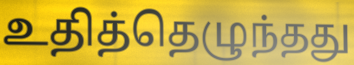
உதித்தெழுந்தது